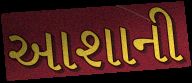
આશાની